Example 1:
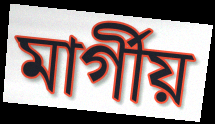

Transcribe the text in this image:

মার্গীয়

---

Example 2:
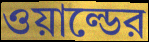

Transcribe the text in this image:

ওয়াল্ডের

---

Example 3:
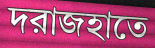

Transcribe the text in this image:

দরাজহাতে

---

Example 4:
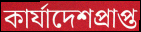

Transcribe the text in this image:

কার্যাদেশপ্রাপ্ত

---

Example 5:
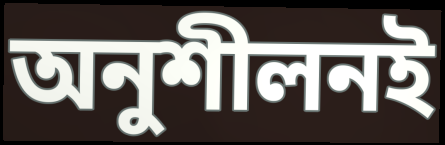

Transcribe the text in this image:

অনুশীলনই